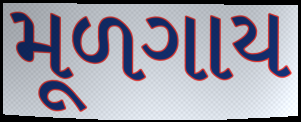
મૂળગાય